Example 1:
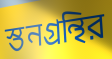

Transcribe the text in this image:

স্তনগ্রন্থির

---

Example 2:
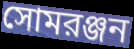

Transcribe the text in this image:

সোমরঞ্জন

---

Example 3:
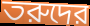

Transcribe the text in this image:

তরুদের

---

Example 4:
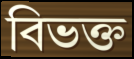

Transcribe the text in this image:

বিভক্ত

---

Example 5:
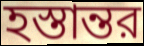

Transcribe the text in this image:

হস্তান্তর